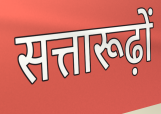
सत्तारूढ़ों